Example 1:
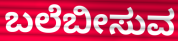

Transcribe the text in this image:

ಬಲೆಬೀಸುವ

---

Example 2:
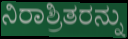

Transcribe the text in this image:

ನಿರಾಶ್ರಿತರನ್ನು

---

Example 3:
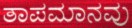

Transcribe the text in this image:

ತಾಪಮಾನವು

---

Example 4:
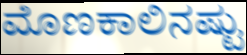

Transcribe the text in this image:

ಮೊಣಕಾಲಿನಷ್ಟು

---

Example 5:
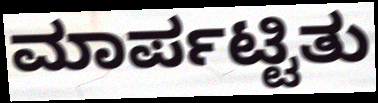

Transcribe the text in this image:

ಮಾರ್ಪಟ್ಟಿತು